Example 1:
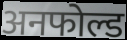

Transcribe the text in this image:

अनफोल्ड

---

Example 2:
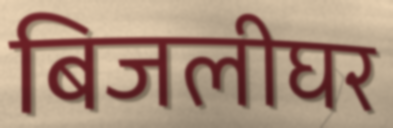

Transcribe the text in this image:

बिजलीघर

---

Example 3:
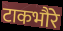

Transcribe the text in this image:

टाकभौरे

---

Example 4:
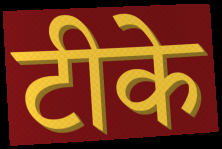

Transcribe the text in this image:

टीके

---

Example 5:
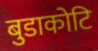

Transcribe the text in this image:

बुडाकोटि